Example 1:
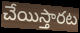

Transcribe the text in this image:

చేయిస్తారట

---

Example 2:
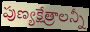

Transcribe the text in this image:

పుణ్యక్షేత్రాలన్నీ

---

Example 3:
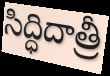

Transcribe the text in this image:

సిద్ధిదాత్రీ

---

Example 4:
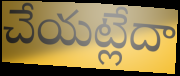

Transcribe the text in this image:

చేయట్లేదా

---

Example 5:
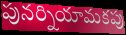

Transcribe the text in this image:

పునర్నియామకపు